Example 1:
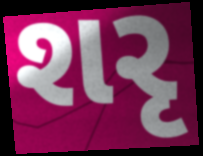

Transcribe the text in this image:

શરૃ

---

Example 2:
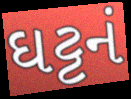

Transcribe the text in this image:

ઘટ્ટનં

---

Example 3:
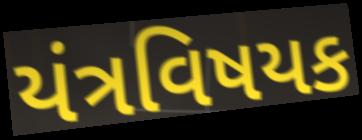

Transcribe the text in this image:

યંત્રવિષયક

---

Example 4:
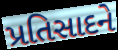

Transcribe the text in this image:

પ્રતિસાદને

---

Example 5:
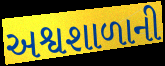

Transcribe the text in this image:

અશ્વશાળાની